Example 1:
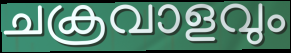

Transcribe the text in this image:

ചക്രവാളവും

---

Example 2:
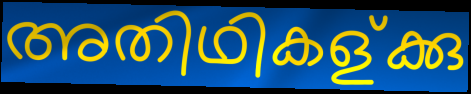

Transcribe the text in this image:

അതിഥികള്ക്കു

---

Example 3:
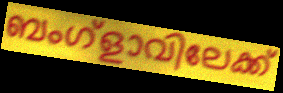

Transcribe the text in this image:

ബംഗ്ളാവിലേക്ക്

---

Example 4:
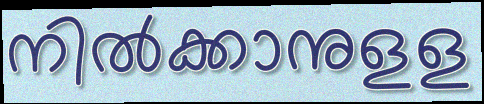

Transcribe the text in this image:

നിൽക്കാനുളള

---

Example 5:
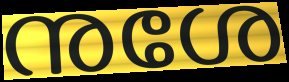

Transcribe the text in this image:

നുശേ